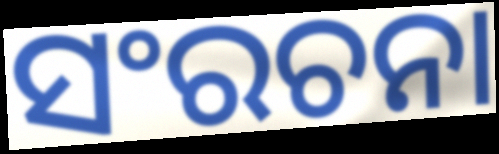
ସଂରଚନା